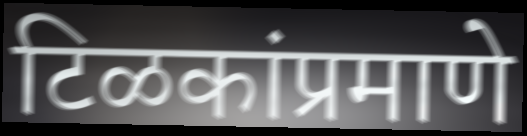
टिळकांप्रमाणे